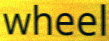
wheel